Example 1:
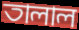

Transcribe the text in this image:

তালাল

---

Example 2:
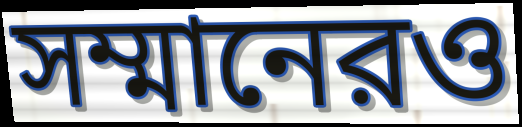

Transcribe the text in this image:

সম্মানেরও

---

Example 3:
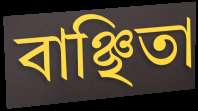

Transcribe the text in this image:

বাঞ্ছিতা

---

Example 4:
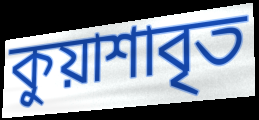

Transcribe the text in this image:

কুয়াশাবৃত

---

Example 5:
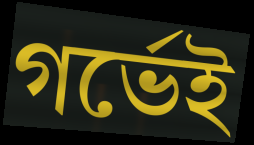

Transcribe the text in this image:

গর্ভেই